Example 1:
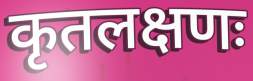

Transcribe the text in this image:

कृतलक्षणः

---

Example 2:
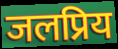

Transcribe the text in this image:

जलप्रिय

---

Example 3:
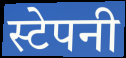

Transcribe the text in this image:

स्टेपनी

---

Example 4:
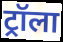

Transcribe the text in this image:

ट्रॉला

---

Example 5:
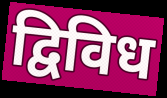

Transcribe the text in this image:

द्विविध